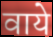
वाये